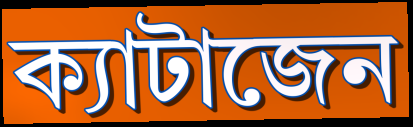
ক্যাটাজেন